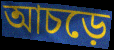
আচড়ে